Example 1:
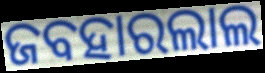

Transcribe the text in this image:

ଜବହାରଲାଲ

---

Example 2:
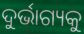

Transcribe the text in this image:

ଦୁର୍ଭାଗ୍ୟକୁ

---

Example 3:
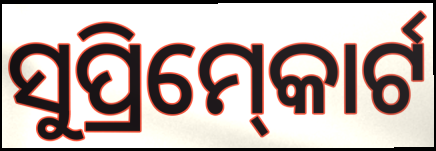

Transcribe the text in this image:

ସୁପ୍ରିମ୍‍କୋର୍ଟ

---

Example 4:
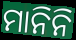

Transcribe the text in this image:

ମାନିନି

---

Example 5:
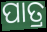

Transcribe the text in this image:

ପାତ୍ର